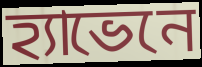
হ্যাভেনে